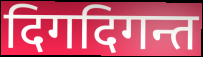
दिगदिगन्त